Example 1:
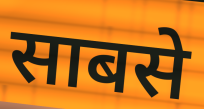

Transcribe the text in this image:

साबसे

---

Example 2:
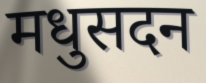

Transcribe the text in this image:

मधुसदन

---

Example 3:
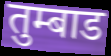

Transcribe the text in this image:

तुम्बाड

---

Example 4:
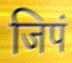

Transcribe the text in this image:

जिपं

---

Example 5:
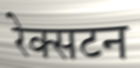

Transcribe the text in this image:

रेक्सटन